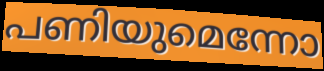
പണിയുമെന്നോ